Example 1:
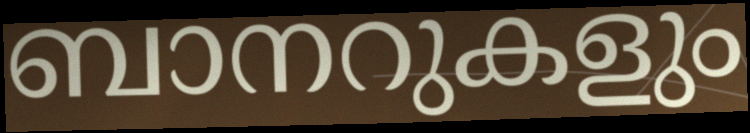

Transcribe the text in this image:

ബാനറുകളും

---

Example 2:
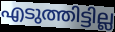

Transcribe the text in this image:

എടുത്തിട്ടില്ല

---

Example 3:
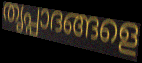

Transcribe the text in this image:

തൃപ്പാദങ്ങളെ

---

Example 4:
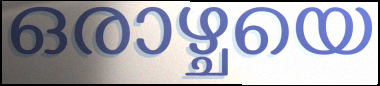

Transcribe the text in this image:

ഒരാഴ്ചയെ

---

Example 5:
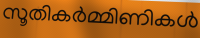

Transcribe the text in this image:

സൂതികർമ്മിണികൾ